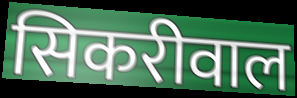
सिकरीवाल